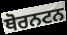
ਥੋਰਨਟਨ